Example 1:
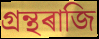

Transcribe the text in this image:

গ্ৰন্থৰাজি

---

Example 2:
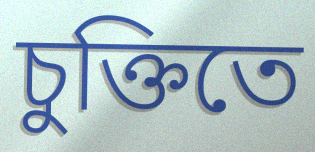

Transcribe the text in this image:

চুক্তিতে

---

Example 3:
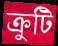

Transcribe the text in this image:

ক্ৰুটি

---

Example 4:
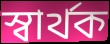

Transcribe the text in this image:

স্বাৰ্থক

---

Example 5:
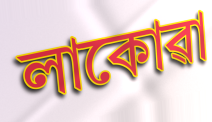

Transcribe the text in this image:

লাকোৱা